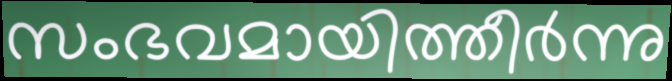
സംഭവമായിത്തീർന്നു